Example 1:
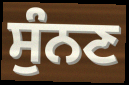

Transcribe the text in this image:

ਸੁੰਨਣ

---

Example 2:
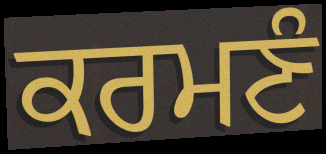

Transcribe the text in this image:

ਕਰਮਣੰ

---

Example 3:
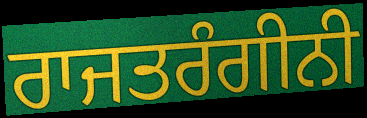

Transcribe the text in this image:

ਰਾਜਤਰੰਗੀਨੀ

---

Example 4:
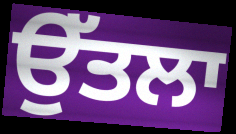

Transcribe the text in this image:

ਉੱਤਲਾ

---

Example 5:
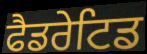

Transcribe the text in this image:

ਫੈਡਰੇਟਿਡ